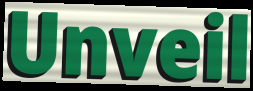
Unveil